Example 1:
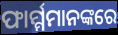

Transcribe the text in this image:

ଫାର୍ମ୍ମମାନଙ୍କରେ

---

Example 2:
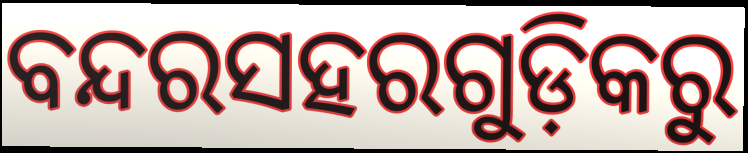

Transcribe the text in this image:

ବନ୍ଦରସହରଗୁଡ଼ିକରୁ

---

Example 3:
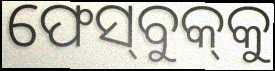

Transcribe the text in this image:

ଫେସ୍‌ବୁକ୍‌କୁ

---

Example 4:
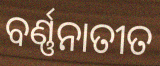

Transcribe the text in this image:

ବର୍ଣ୍ଣନାତୀତ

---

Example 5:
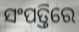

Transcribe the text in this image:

ସଂପତ୍ତିରେ